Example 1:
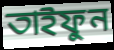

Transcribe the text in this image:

তাইফুন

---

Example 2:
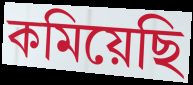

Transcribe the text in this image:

কমিয়েছি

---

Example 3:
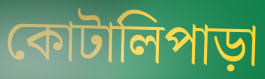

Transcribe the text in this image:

কোটালিপাড়া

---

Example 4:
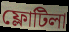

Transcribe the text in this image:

ফ্লোটিলা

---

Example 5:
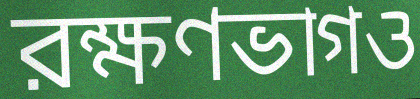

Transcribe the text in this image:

রক্ষণভাগও